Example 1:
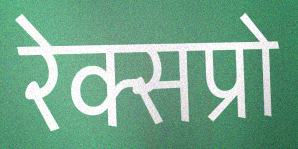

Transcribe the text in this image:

रेक्सप्रो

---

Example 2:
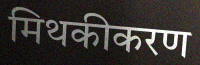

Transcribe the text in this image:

मिथकीकरण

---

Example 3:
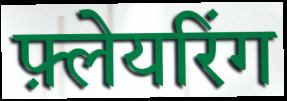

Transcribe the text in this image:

फ़्लेयरिंग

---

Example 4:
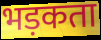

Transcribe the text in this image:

भड़कता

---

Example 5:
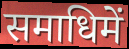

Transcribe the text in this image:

समाधिमें